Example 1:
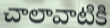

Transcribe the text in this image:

చాలావాటికి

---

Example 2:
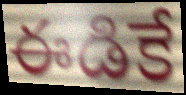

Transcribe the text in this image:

ఈడికే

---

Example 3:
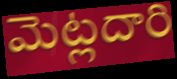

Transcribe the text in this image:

మెట్లదారి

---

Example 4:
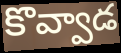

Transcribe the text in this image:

కొవ్వాడ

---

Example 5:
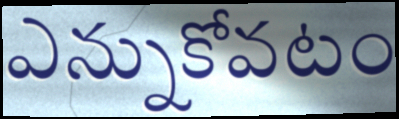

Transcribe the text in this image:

ఎన్నుకోవటం